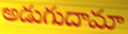
అడుగుదామా